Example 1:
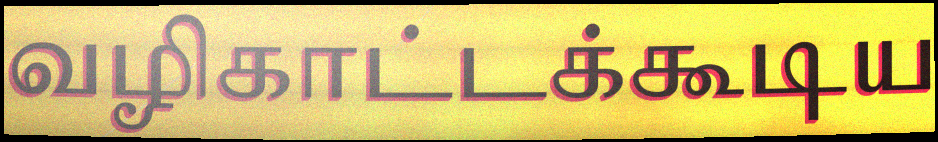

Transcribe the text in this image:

வழிகாட்டக்கூடிய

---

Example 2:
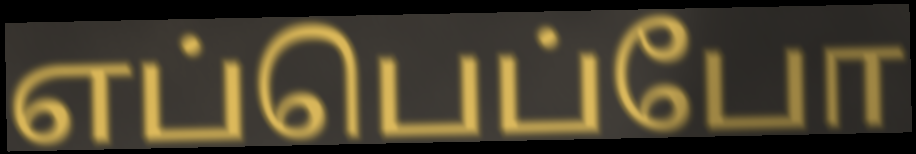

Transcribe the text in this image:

எப்பெப்போ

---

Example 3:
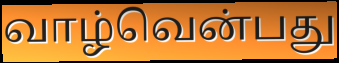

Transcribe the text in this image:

வாழ்வென்பது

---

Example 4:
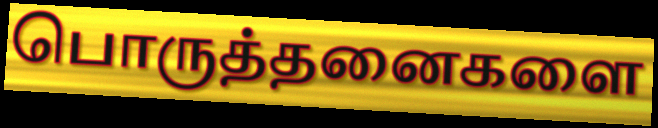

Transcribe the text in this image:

பொருத்தனைகளை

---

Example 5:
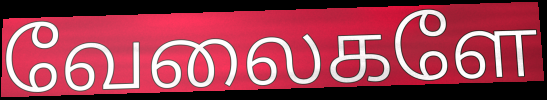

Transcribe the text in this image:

வேலைகளே